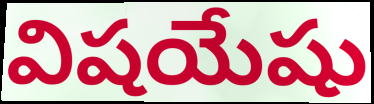
విషయేషు